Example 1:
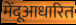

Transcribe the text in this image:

मेंदूआधारित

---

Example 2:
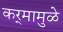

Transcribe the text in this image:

कर्मामुळे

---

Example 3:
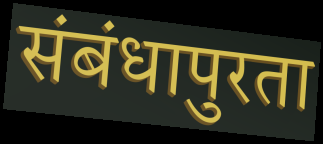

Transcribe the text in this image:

संबंधापुरता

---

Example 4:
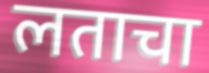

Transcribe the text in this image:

लताचा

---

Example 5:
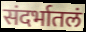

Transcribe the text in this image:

संदर्भातलं